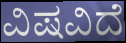
ವಿಷವಿದೆ